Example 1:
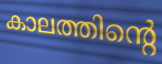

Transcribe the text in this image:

കാലത്തിന്റെ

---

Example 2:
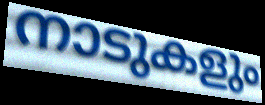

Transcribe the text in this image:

നാടുകളും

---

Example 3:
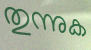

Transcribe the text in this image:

തുന്നുക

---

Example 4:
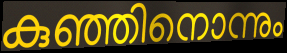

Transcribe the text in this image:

കുഞ്ഞിനൊന്നും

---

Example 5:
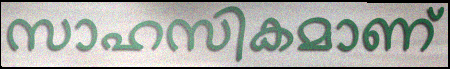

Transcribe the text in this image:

സാഹസികമാണ്